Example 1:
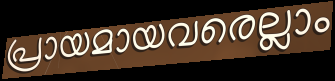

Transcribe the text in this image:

പ്രായമായവരെല്ലാം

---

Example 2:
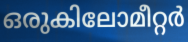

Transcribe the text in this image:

ഒരുകിലോമീറ്റർ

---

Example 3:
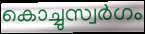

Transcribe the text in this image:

കൊച്ചുസ്വർഗം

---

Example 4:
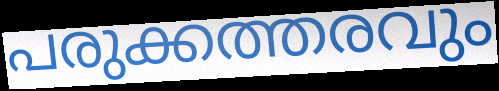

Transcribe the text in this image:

പരുക്കത്തരവും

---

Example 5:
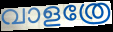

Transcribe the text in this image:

വാളത്രേ